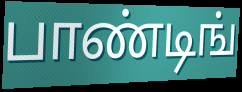
பாண்டிங்